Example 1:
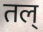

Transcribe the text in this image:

तल्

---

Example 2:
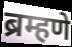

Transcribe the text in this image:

ब्रम्हणे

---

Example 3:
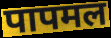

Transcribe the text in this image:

पापमल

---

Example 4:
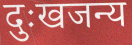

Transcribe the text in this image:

दुःखजन्य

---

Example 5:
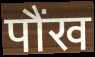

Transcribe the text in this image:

पौंख